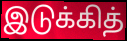
இடுக்கித்